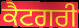
ਕੈਟਗਰੀ